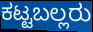
ಕಟ್ಟಬಲ್ಲರು